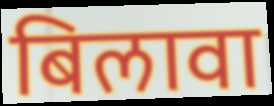
बिलावा